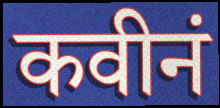
कवीनं